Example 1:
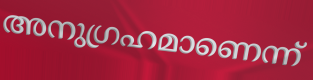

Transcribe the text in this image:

അനുഗ്രഹമാണെന്ന്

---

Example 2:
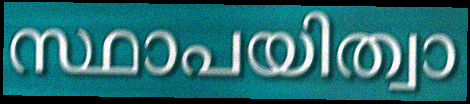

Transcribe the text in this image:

സ്ഥാപയിത്വാ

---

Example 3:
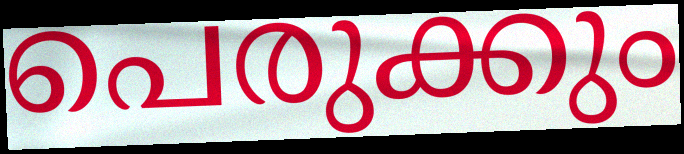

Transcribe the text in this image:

പെരുക്കും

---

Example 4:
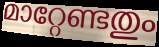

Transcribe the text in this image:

മാറ്റേണ്ടതും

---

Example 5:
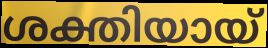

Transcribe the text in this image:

ശക്തിയായ്